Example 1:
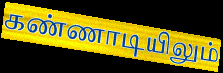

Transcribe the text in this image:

கண்ணாடியிலும்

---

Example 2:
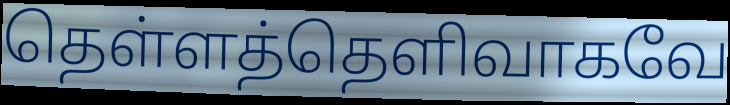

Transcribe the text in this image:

தெள்ளத்தெளிவாகவே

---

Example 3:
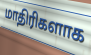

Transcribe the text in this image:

மாதிரிகளாக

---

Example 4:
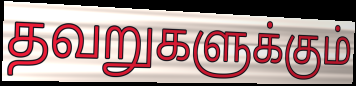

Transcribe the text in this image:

தவறுகளுக்கும்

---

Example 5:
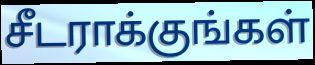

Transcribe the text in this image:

சீடராக்குங்கள்